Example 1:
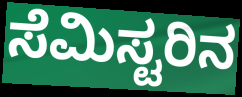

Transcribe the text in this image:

ಸೆಮಿಸ್ಟರಿನ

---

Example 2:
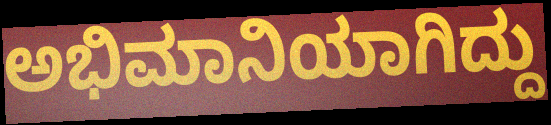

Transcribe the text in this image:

ಅಭಿಮಾನಿಯಾಗಿದ್ದು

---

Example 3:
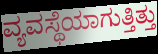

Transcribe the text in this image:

ವ್ಯವಸ್ಥೆಯಾಗುತ್ತಿತ್ತು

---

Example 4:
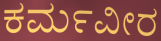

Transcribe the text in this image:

ಕರ್ಮವೀರ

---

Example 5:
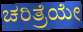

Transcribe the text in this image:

ಚರಿತ್ರೆಯೇ